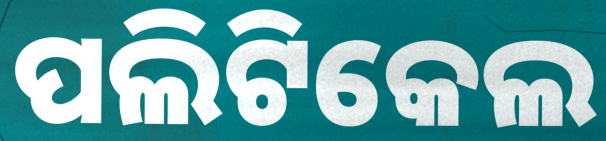
ପଲିଟିକେଲ